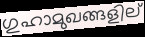
ഗുഹാമുഖങ്ങളില്